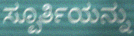
ಸ್ಪೂರ್ತಿಯನ್ನು